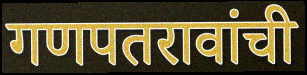
गणपतरावांची